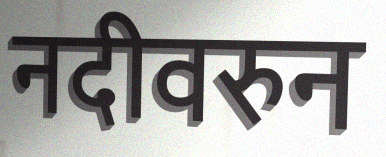
नदीवरुन